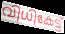
വിധികേട്ട്